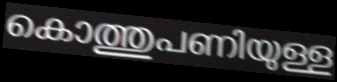
കൊത്തുപണിയുള്ള